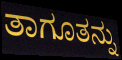
ತಾಗೂತನ್ನು